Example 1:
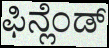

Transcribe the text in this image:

ಫಿನ್ಲೆಂಡ್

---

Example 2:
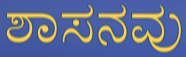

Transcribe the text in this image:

ಶಾಸನವು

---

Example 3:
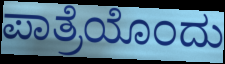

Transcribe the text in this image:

ಪಾತ್ರೆಯೊಂದು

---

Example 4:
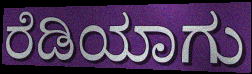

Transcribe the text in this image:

ರೆಡಿಯಾಗು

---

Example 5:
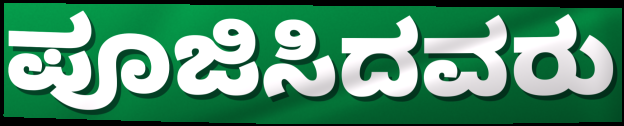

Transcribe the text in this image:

ಪೂಜಿಸಿದವರು